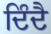
ਦਿੰਦੈ